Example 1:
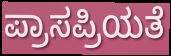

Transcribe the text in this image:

ಪ್ರಾಸಪ್ರಿಯತೆ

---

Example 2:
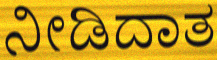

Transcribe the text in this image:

ನೀಡಿದಾತ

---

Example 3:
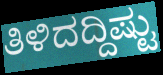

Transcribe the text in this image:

ತಿಳಿದದ್ದಿಷ್ಟು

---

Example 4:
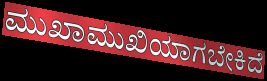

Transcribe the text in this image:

ಮುಖಾಮುಖಿಯಾಗಬೇಕಿದೆ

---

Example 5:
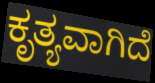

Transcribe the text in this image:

ಕೃತ್ಯವಾಗಿದೆ